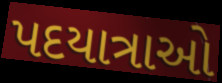
પદયાત્રાઓ